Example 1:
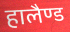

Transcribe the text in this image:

हालैण्ड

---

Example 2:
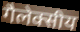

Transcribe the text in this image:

गैलेक्सीय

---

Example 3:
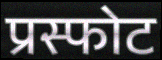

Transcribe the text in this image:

प्रस्फोट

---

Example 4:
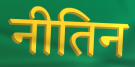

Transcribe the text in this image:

नीतिन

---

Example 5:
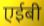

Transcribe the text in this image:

एईबी